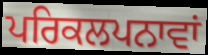
ਪਰਿਕਲਪਨਾਵਾਂ